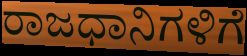
ರಾಜಧಾನಿಗಳಿಗೆ